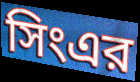
সিংএর